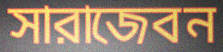
সারাজেবন